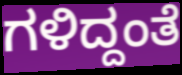
ಗಳಿದ್ದಂತೆ